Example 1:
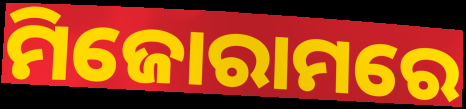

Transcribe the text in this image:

ମିଜୋରାମରେ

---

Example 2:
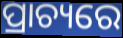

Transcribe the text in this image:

ପ୍ରାଚ୍ୟରେ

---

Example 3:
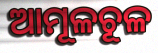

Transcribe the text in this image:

ଆମୂଳଚୂଳ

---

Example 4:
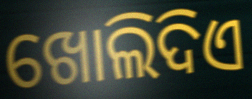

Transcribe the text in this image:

ଖୋଲିଦିଏ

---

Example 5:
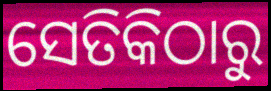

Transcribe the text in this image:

ସେତିକିଠାରୁ